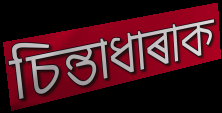
চিন্তাধাৰাক